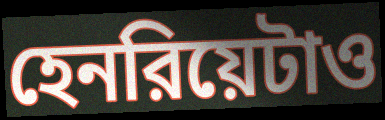
হেনরিয়েটাও